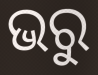
ଭରୁ